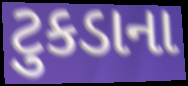
ટુકડાના